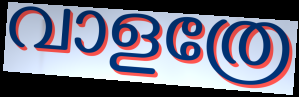
വാളത്രേ